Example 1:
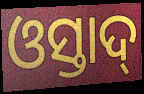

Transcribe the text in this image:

ଓସ୍ତାଦ୍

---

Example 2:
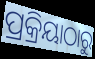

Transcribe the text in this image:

ପ୍ରକ୍ରିୟାଠାରୁ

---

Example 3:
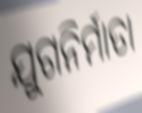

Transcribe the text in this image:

ଯୁଗନିର୍ମାତା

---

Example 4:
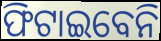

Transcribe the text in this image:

ଫିଟାଇବେନି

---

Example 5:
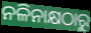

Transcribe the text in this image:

ନଳିନାକ୍ଷଠାରୁ